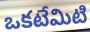
ఒకటేమిటి